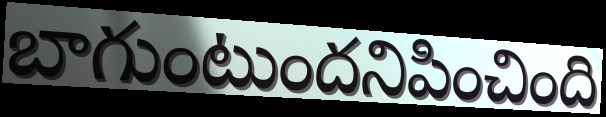
బాగుంటుందనిపించింది